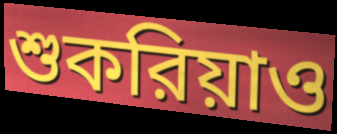
শুকরিয়াও